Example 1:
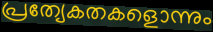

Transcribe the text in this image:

പ്രത്യേകതകളൊന്നും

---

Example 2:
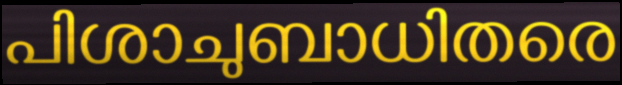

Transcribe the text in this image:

പിശാചുബാധിതരെ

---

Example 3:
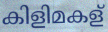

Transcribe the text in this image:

കിളിമകള്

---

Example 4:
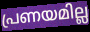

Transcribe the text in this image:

പ്രണയമില്ല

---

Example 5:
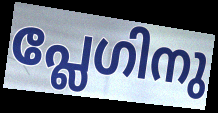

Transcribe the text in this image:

പ്ലേഗിനു